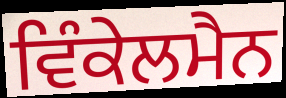
ਵਿੰਕੇਲਮੈਨ